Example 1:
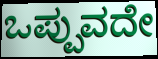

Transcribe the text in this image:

ಒಪ್ಪುವದೇ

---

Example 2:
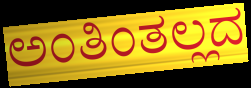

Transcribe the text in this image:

ಅಂತಿಂತಲ್ಲದ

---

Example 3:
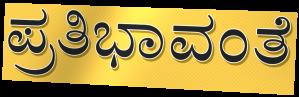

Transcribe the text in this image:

ಪ್ರತಿಭಾವಂತೆ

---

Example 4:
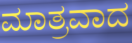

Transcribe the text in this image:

ಮಾತ್ರವಾದ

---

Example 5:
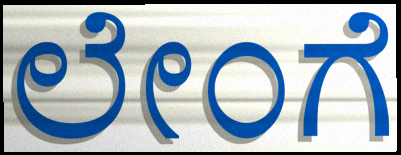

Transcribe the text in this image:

ಲೇಂಗೆ